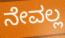
ನೇವಲ್ಲ